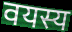
वयस्य